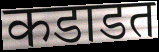
कडाडत